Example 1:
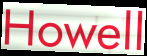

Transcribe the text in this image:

Howell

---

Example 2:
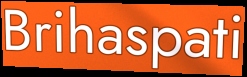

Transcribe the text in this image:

Brihaspati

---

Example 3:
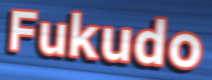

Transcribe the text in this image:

Fukudo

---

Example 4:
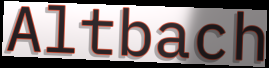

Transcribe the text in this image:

Altbach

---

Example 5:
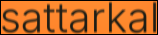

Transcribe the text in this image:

sattarkal